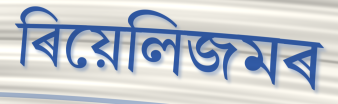
ৰিয়েলিজমৰ